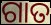
ଗାତ